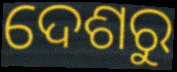
ଦେଶରୁ